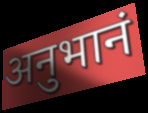
अनुभानं